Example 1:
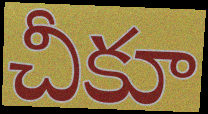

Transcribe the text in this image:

చీకూ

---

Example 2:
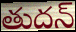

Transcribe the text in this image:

తుదన్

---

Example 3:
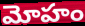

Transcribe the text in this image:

మోహం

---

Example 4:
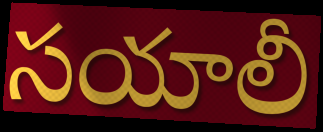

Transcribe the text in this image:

సయాలీ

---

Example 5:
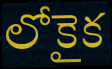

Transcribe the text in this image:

లోకైక